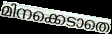
മിനക്കെടാതെ